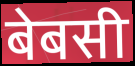
बेबसी